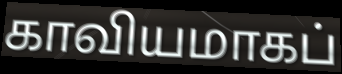
காவியமாகப்